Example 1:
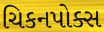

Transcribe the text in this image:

ચિકનપોક્સ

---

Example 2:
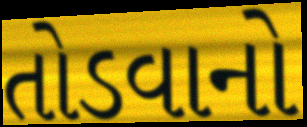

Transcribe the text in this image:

તોડવાનો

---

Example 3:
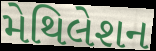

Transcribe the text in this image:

મેથિલેશન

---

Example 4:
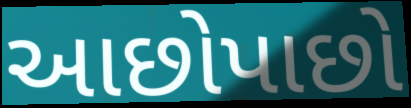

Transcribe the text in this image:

આછોપાછો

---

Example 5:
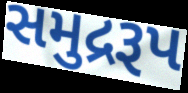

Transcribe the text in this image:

સમુદ્રરૂપ